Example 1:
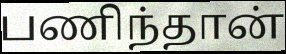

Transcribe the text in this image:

பணிந்தான்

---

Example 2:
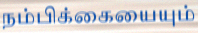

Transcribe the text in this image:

நம்பிக்கையையும்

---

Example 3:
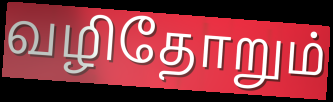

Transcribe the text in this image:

வழிதோறும்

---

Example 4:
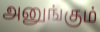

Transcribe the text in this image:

அனுங்கும்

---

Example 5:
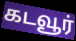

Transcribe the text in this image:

கடவூர்